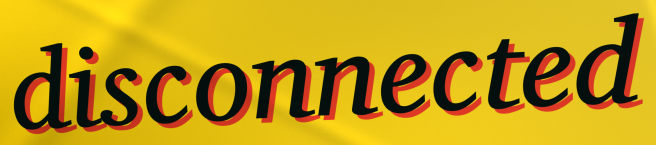
disconnected